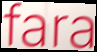
fara